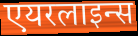
एयरलाइन्स